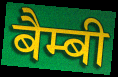
बैम्बी